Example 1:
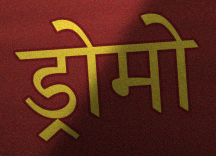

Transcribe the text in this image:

ड्रोमो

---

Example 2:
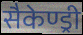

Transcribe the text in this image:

सैकेण्ड्री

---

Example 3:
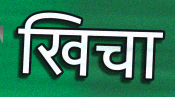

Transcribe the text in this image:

खिचा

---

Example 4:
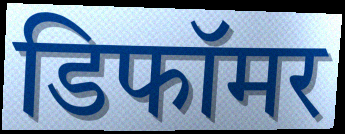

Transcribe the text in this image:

डिफॉमर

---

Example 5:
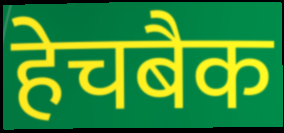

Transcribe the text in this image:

हेचबैक